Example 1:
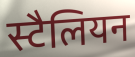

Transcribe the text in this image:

स्टैलियन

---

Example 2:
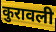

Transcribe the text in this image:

कुरावली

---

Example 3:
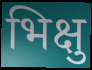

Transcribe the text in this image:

भिक्षु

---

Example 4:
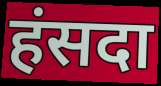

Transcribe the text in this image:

हंसदा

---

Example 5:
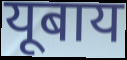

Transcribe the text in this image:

यूबाय